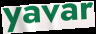
yavar